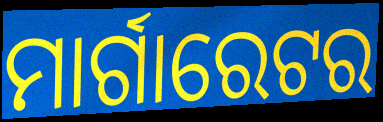
ମାର୍ଗାରେଟର